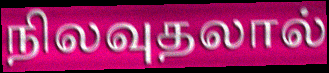
நிலவுதலால்